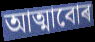
আত্মাবোৰ